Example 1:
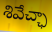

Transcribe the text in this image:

శివేచ్ఛా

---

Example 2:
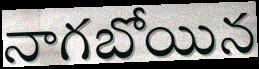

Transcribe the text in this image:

నాగబోయిన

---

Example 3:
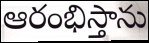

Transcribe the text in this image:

ఆరంభిస్తాను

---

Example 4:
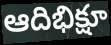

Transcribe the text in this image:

ఆదిభిక్షూ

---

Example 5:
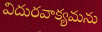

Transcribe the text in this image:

విదురవాక్యమను